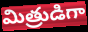
మిత్రుడిగా